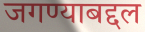
जगण्याबद्दल